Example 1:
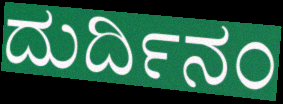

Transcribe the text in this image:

ದುರ್ದಿನಂ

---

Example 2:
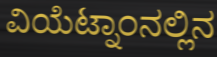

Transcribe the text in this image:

ವಿಯೆಟ್ನಾಂನಲ್ಲಿನ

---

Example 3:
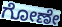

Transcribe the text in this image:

ಗೋಣೇ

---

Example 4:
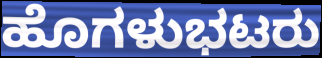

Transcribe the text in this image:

ಹೊಗಳುಭಟರು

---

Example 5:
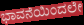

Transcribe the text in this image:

ಭಾವನೆಯಿಂದಲೇ